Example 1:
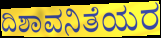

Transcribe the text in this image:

ದಿಶಾವನಿತೆಯರ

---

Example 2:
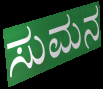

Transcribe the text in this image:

ಸುಮನ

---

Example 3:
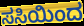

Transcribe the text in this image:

ಸಸಿಯಿಂದ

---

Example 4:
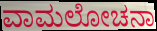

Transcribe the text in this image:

ವಾಮಲೋಚನಾ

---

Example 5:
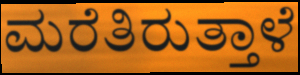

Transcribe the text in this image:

ಮರೆತಿರುತ್ತಾಳೆ